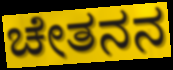
ಚೇತನನ